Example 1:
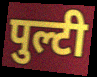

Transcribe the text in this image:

पुल्टी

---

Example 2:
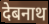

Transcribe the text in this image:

देबनाथ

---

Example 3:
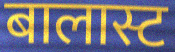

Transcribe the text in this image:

बालास्ट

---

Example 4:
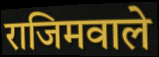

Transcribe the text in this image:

राजिमवाले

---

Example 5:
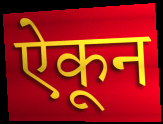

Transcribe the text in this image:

ऐकून